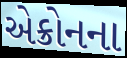
એક્રોનના